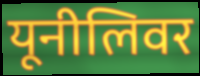
यूनीलिवर